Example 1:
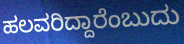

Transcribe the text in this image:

ಹಲವರಿದ್ದಾರೆಂಬುದು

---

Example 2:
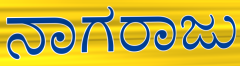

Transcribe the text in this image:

ನಾಗರಾಜು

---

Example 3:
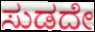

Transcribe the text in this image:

ಸುಡದೇ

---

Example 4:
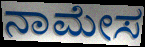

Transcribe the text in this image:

ನಾಮೇಸ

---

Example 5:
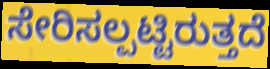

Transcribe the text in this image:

ಸೇರಿಸಲ್ಪಟ್ಟಿರುತ್ತದೆ